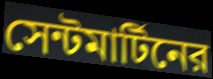
সেন্টমার্টিনের